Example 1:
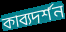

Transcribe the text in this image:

কাব্যদর্শন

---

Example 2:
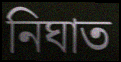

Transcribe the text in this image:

নিঘাত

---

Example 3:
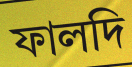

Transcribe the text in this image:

ফালদি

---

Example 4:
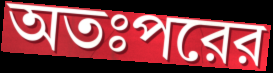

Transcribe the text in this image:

অতঃপরের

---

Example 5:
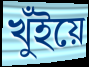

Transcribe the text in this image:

খুঁইয়ে